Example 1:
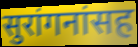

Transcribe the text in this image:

सुरांगनांसह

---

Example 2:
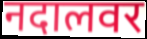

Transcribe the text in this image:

नदालवर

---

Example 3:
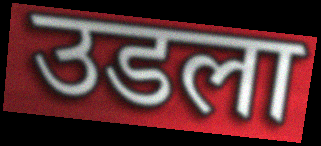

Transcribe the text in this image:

उडला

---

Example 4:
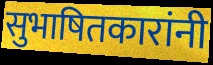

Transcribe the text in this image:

सुभाषितकारांनी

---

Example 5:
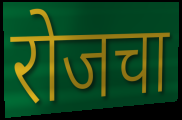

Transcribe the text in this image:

रोजचा